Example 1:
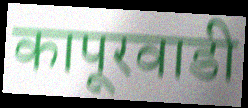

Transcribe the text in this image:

कापूरवाडी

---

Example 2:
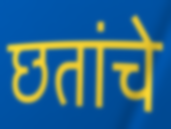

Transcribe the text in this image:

छतांचे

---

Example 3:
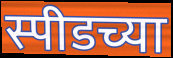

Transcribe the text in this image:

स्पीडच्या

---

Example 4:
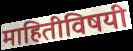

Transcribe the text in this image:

माहितीविषयी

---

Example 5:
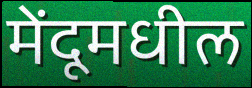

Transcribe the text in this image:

मेंदूमधील